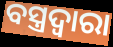
ବସ୍ତ୍ରଦ୍ୱାରା